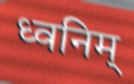
ध्वनिम्